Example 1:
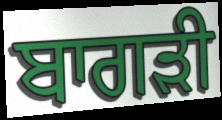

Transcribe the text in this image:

ਬਾਗੜੀ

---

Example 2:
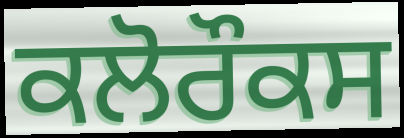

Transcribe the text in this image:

ਕਲੋਰੌਕਸ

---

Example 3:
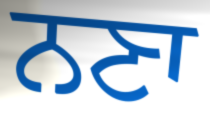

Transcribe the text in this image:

ਨਣਾ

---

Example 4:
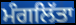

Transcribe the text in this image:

ਮੰਗਲਿੱਤਾ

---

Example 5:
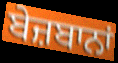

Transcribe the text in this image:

ਬੇਜ਼ਬਾਨਾਂ